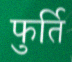
फुर्ति